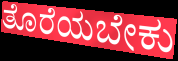
ತೊರೆಯಬೇಕು